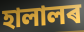
হালালৰ